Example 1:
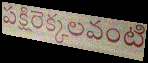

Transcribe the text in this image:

పక్షిరెక్కలవంటి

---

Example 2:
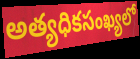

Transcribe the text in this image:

అత్యధికసంఖ్యలో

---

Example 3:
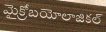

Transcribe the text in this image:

మైక్రోబయోలాజికల్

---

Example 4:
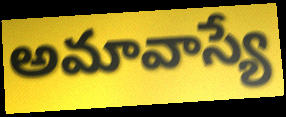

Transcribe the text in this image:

అమావాస్యే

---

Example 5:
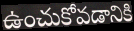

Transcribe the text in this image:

ఉంచుకోవడానికి